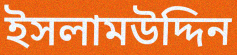
ইসলামউদ্দিন